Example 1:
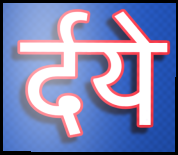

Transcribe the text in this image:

र्दये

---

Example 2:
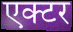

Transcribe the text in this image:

एक्टर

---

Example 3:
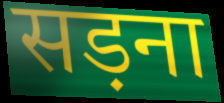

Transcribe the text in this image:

सड़ना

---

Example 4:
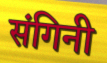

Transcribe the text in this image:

संगिनी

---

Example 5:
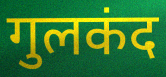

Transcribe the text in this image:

गुलकंद